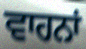
ਵਾਹਨਾਂ